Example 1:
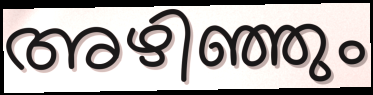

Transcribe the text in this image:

അഴിഞ്ഞും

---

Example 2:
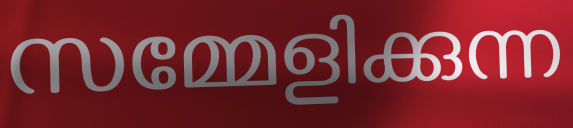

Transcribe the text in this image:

സമ്മേളിക്കുന്ന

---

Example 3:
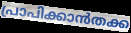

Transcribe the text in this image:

പ്രാപിക്കാൻതക്ക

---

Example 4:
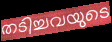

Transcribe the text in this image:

തടിച്ചവയുടെ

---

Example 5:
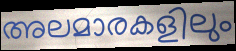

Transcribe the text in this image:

അലമാരകളിലും